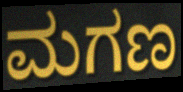
ಮಗಣ